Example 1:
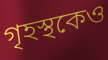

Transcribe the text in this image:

গৃহস্থকেও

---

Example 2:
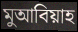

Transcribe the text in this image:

মুআবিয়াহ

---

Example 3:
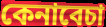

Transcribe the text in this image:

কেনাবেচা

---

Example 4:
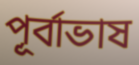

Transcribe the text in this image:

পূর্বাভাষ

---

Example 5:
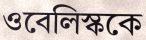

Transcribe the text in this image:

ওবেলিস্ককে